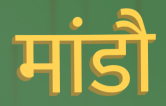
मांडौ